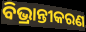
ବିଭ୍ରାନ୍ତୀକରଣ